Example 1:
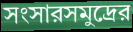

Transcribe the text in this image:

সংসারসমুদ্রের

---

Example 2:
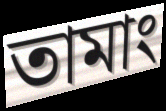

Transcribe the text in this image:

তামাং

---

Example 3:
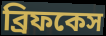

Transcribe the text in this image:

ব্রিফকেস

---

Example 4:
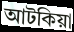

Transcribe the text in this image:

আটকিয়া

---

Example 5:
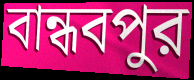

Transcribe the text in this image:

বান্ধবপুর